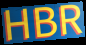
HBR